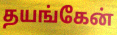
தயங்கேன்